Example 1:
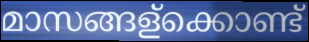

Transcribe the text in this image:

മാസങ്ങള്ക്കൊണ്ട്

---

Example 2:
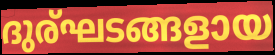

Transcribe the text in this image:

ദുര്ഘടങ്ങളായ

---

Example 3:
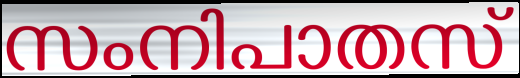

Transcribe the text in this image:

സംനിപാതസ്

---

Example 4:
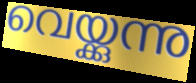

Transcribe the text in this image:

വെയ്ക്കുന്നു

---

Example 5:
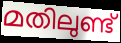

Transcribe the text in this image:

മതിലുണ്ട്